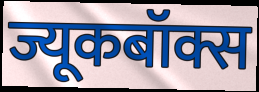
ज्यूकबॉक्स